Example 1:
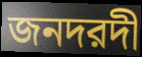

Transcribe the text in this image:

জনদরদী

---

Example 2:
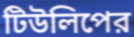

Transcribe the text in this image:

টিউলিপের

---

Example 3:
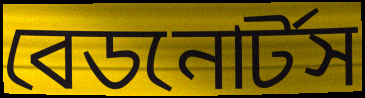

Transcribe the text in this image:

বেডনোর্টস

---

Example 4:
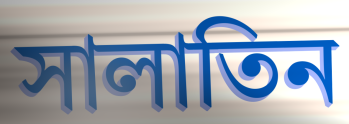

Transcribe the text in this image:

সালাতিন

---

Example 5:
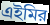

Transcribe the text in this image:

এইমির